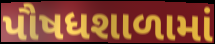
પૌષધશાળામાં